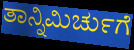
ತಾನ್ನಿಮಿರ್ಚುಗೆ